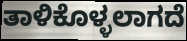
ತಾಳಿಕೊಳ್ಳಲಾಗದೆ